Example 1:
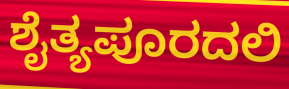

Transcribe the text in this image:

ಶೈತ್ಯಪೂರದಲಿ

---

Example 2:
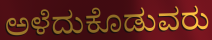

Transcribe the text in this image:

ಅಳೆದುಕೊಡುವರು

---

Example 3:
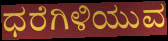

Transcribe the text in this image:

ಧರೆಗಿಳಿಯುವ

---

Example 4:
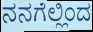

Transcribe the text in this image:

ನನಗೆಲ್ಲಿಂದ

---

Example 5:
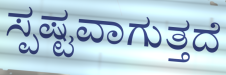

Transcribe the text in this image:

ಸ್ಪಷ್ಟವಾಗುತ್ತದೆ